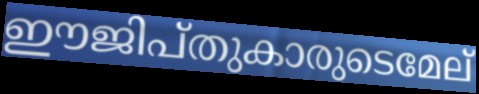
ഈജിപ്തുകാരുടെമേല്